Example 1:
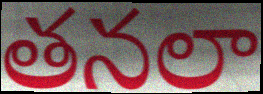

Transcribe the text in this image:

తనలా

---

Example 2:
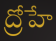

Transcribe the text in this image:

ద్రోహే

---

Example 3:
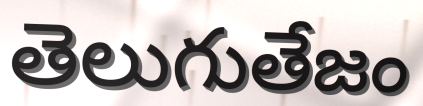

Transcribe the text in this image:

తెలుగుతేజం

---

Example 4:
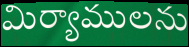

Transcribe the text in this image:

మిర్యాములను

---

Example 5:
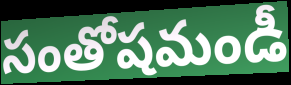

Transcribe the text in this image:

సంతోషమండీ